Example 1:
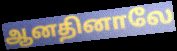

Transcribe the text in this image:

ஆனதினாலே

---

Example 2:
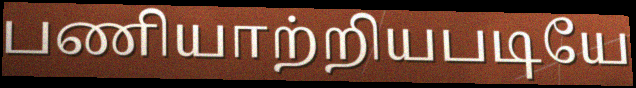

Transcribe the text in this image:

பணியாற்றியபடியே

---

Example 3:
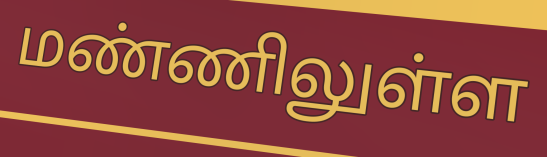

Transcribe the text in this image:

மண்ணிலுள்ள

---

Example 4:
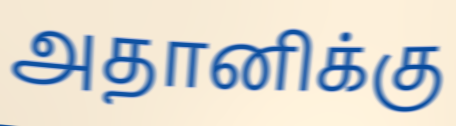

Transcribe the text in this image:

அதானிக்கு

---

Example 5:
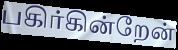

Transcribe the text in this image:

பகிர்கின்றேன்